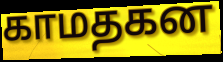
காமதகன